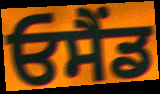
ਓਸੈਂਡ